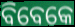
ବିବେକେ